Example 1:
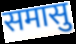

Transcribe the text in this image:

समासु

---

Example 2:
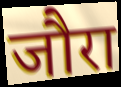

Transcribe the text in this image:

जौरा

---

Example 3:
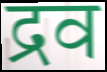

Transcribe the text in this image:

द्रव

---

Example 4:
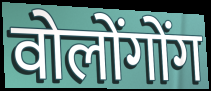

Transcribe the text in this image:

वोलोंगोंग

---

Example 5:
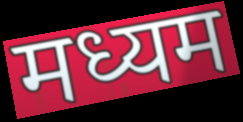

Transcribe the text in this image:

मध्यम